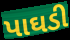
પાઘડી